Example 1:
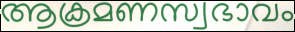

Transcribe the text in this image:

ആക്രമണസ്വഭാവം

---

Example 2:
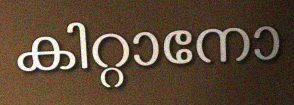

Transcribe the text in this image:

കിറ്റാനോ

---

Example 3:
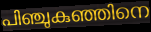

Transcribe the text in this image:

പിഞ്ചുകുഞ്ഞിനെ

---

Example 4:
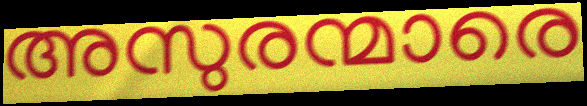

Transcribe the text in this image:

അസുരന്മാരെ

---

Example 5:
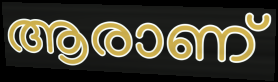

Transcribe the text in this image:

ആരാണ്